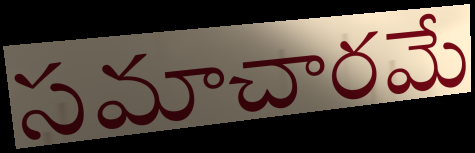
సమాచారమే